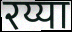
रय्या